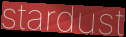
stardust